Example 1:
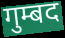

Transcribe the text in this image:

गुम्बद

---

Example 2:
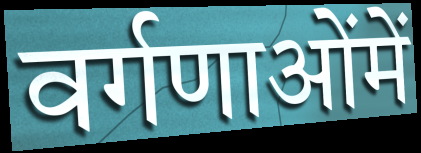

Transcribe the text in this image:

वर्गणाओंमें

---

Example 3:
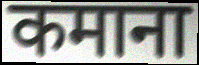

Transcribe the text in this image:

कमाना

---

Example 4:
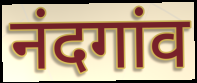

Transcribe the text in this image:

नंदगांव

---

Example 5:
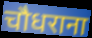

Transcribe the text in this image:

चौधराना